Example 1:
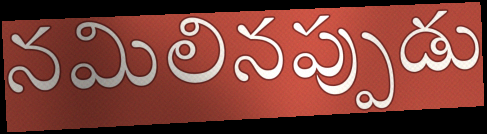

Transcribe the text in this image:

నమిలినప్పుడు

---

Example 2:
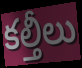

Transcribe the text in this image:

కల్తీలు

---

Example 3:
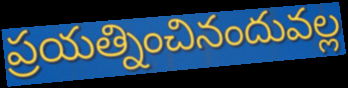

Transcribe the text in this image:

ప్రయత్నించినందువల్ల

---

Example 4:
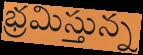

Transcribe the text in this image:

భ్రమిస్తున్న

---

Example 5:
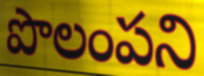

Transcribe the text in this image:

పొలంపని